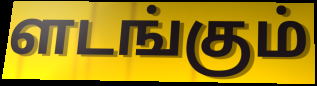
ளடங்கும்